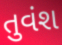
તુવંશ